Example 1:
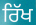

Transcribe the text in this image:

ਰਿੱਖ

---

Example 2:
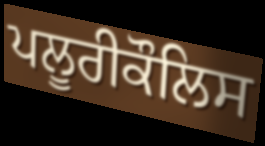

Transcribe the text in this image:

ਪਲੂਰੀਕੌਲਿਸ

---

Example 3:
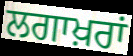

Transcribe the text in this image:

ਲਗਾਖ਼ਰਾਂ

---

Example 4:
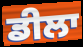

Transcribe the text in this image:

ਡੀਲਾ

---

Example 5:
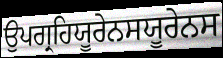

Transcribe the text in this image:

ਉਪਗ੍ਰਹਿਯੂਰੇਨਸਯੂਰੇਨਸ